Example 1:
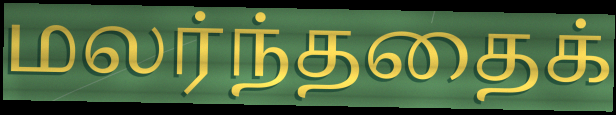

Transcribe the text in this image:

மலர்ந்ததைக்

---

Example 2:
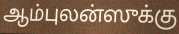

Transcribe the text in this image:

ஆம்புலன்ஸுக்கு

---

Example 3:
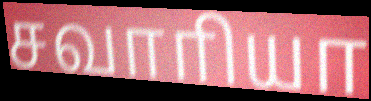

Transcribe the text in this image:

சவாரியா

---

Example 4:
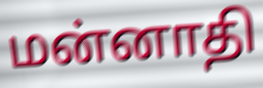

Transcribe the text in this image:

மன்னாதி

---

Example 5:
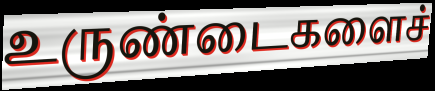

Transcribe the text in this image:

உருண்டைகளைச்